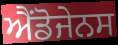
ਐਂਡੋਜੇਨਸ